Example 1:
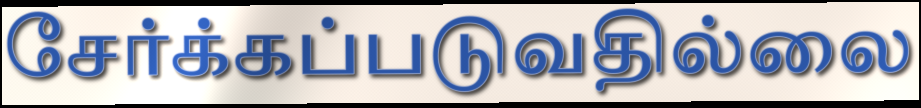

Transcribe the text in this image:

சேர்க்கப்படுவதில்லை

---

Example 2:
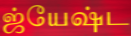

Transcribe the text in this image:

ஜ்யேஷ்ட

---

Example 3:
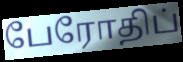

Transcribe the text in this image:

பேரோதிப்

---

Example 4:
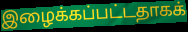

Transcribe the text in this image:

இழைக்கப்பட்டதாகக்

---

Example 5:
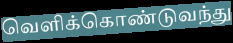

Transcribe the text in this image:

வெளிக்கொண்டுவந்து